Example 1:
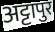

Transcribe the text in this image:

अट्टापुर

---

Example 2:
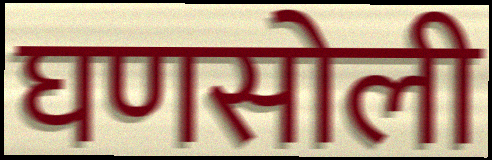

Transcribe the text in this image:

घणसोली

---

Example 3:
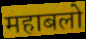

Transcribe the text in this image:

महाबलो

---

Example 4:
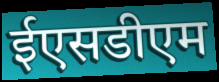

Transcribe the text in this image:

ईएसडीएम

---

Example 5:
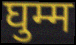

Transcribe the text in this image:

घुम्म